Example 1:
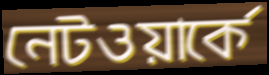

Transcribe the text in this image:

নেটওয়ার্কে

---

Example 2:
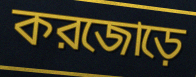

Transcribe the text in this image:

করজোড়ে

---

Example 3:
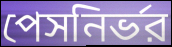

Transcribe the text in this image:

পেসনির্ভর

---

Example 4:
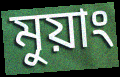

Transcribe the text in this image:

মুয়াং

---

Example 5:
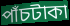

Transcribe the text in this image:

পাঁচটাকা